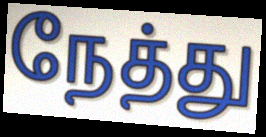
நேத்து